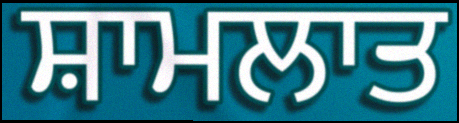
ਸ਼ਾਮਲਾਤ